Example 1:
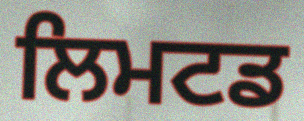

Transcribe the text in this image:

ਲਿਮਟਡ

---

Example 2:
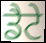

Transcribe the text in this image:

ਡੈਟੇ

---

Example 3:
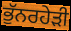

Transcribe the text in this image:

ਭੁੱਨਰਹੇੜੀ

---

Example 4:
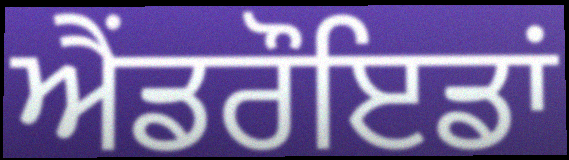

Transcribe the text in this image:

ਐਂਡਰੌਇਡਾਂ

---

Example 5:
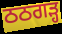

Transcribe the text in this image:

ਠਠਗੜ੍ਹ